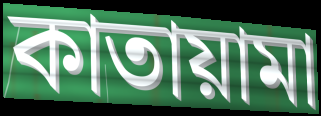
কাতায়ামা